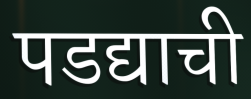
पडद्याची